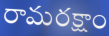
రామరక్షాం